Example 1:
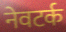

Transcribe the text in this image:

नेवटर्क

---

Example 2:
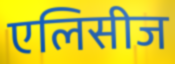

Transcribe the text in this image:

एलिसीज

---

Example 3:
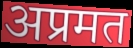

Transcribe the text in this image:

अप्रमत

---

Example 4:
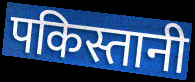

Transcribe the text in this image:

पकिस्तानी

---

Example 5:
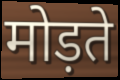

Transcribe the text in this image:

मोड़ते